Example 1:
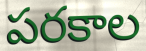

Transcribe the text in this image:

పరకాల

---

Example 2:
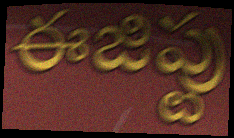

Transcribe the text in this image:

ఈజిప్టు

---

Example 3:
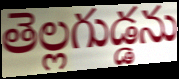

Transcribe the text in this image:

తెల్లగుడ్డను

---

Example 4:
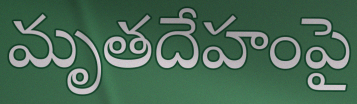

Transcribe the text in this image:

మృతదేహంపై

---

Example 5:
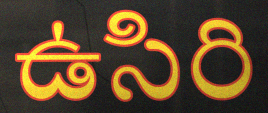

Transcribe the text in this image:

ఉసిరి